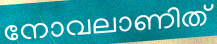
നോവലാണിത്